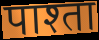
पाश्ता